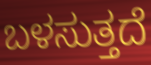
ಬಳಸುತ್ತದೆ